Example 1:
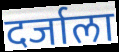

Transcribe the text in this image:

दर्जाला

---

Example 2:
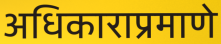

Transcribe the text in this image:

अधिकाराप्रमाणे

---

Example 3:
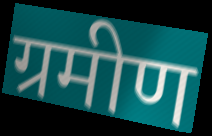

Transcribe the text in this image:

ग्रमीण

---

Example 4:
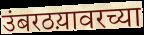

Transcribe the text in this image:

उंबरठय़ावरच्या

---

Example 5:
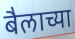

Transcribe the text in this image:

बैलाच्या